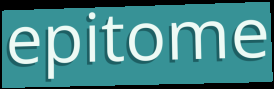
epitome